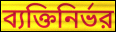
ব্যক্তিনির্ভর